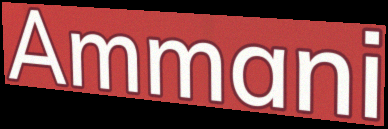
Ammani